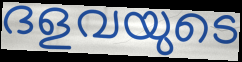
ദളവയുടെ